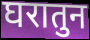
घरातुन